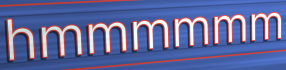
hmmmmmm